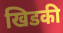
खिडकी